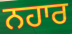
ਨਹਾਰ